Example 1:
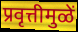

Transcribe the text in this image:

प्रवृत्तीमुळें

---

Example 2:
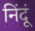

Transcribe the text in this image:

निंदूं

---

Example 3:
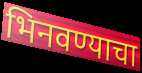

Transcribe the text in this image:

भिनवण्याचा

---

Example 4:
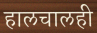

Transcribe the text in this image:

हालचालही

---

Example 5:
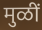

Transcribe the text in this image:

मुळीं